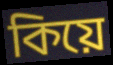
কিয়ে